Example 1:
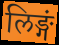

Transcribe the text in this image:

लिङ्गं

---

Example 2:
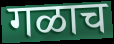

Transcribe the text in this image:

गळाच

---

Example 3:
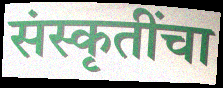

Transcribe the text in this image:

संस्कृतींचा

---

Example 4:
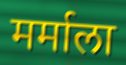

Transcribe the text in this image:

मर्माला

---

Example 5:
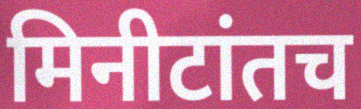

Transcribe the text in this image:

मिनीटांतच